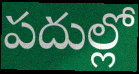
పదుల్లో